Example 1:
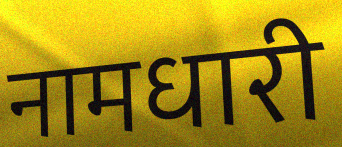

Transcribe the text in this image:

नामधारी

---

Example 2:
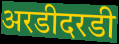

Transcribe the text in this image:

अरडीदरडी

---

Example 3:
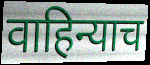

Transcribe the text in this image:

वाहिन्याच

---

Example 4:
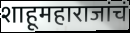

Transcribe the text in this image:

शाहूमहाराजांचं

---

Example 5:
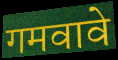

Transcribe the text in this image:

गमवावे